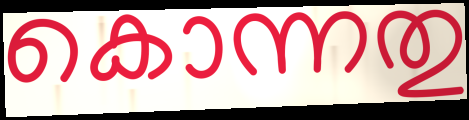
കൊന്നതു